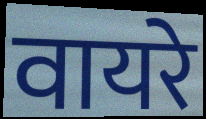
वायरे